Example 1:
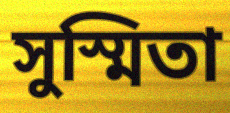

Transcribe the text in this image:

সুস্মিতা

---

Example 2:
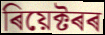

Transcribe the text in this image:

ৰিয়েক্টৰৰ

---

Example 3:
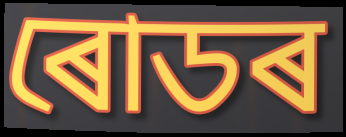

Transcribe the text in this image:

ৰোডৰ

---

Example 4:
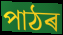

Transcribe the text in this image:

পাঠৰ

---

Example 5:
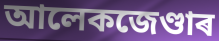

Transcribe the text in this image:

আলেকজেণ্ডাৰ